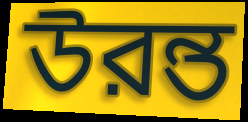
উরন্ত